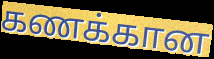
கணக்கான